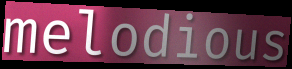
melodious